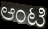
ಆಂಟಿ